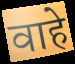
वाहे